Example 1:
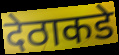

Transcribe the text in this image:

देठाकडे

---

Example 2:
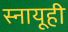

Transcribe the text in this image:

स्नायूही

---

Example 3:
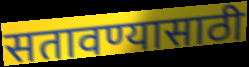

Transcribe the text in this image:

सतावण्यासाठी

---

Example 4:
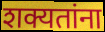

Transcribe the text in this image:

शक्यतांना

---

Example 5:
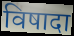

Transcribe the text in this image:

विषादा